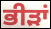
ਭੀੜਾਂ